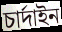
চাৰ্দাইন